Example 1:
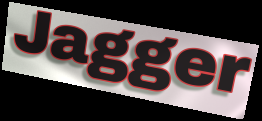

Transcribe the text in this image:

Jagger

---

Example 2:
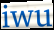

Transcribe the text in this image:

iwu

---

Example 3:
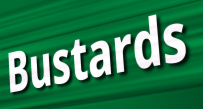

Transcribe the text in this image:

Bustards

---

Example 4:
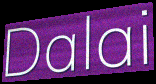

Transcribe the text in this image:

Dalai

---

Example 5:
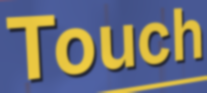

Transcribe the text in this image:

Touch